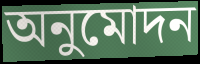
অনুমোদন